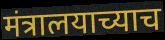
मंत्रालयाच्याच